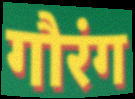
गौरंग